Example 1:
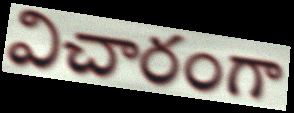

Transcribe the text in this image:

విచారంగా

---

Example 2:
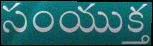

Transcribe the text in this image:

సంయుక్త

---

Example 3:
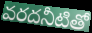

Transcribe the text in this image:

వరదనీటితో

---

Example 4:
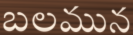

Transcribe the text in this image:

బలమున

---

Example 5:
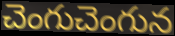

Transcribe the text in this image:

చెంగుచెంగున